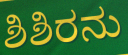
ಶಿಶಿರನು